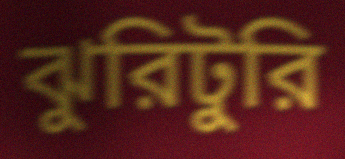
ঝুরিটুরি